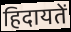
हिदायतें